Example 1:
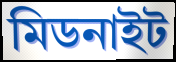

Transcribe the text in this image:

মিডনাইট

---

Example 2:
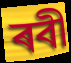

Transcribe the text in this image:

ৰবী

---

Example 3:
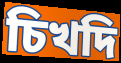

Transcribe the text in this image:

চিখদি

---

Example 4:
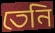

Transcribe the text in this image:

তেনি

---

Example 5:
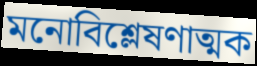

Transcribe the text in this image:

মনোবিশ্লেষণাত্মক